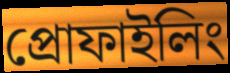
প্রোফাইলিং